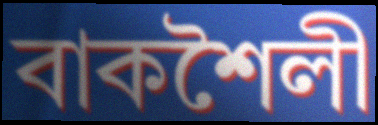
বাকশৈলী